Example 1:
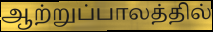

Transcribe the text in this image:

ஆற்றுப்பாலத்தில்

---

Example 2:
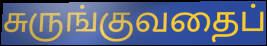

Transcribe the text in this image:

சுருங்குவதைப்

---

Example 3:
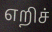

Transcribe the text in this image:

எறிச்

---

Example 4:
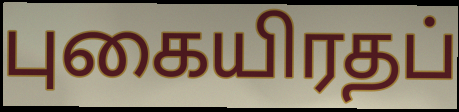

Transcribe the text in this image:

புகையிரதப்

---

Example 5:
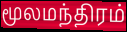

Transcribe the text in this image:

மூலமந்திரம்